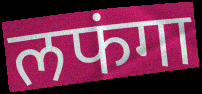
लफंगा